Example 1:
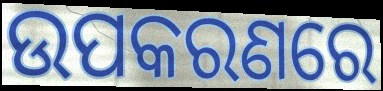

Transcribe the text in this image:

ଉପକରଣରେ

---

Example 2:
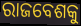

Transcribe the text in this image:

ରାଜବେଶକୁ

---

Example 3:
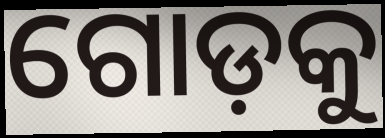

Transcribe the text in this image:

ଗୋଡ଼କୁ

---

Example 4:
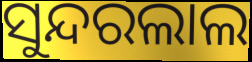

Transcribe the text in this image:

ସୁନ୍ଦରଲାଲ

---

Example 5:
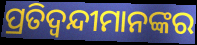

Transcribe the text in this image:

ପ୍ରତିଦ୍ୱନ୍ଦୀମାନଙ୍କର